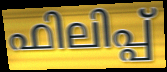
ഫിലിപ്പ്